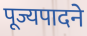
पूज्यपादने